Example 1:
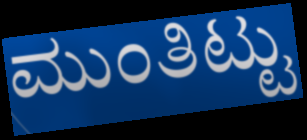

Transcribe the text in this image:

ಮುಂತಿಟ್ಟು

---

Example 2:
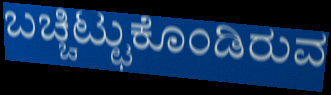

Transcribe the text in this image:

ಬಚ್ಚಿಟ್ಟುಕೊಂಡಿರುವ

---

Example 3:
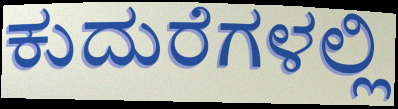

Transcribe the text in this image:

ಕುದುರೆಗಳಲ್ಲಿ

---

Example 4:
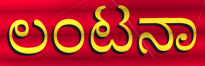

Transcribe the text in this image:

ಲಂಟನಾ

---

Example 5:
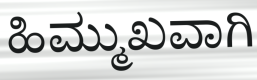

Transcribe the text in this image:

ಹಿಮ್ಮುಖವಾಗಿ